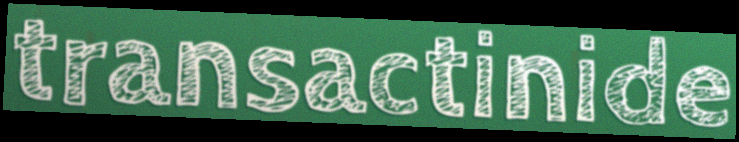
transactinide